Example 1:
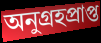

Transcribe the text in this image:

অনুগ্রহপ্রাপ্ত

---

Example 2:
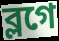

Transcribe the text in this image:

ব্লগে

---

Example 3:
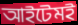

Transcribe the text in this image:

আইটেমই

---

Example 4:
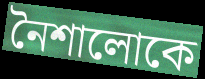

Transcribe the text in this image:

নৈশালোকে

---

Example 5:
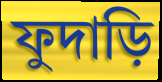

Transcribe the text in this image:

ফুদাড়ি